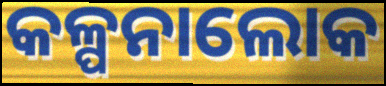
କଳ୍ପନାଲୋକ